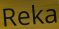
Reka